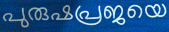
പുരുഷപ്രജയെ